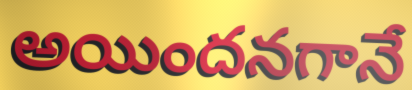
అయిందనగానే